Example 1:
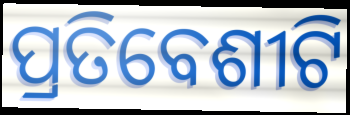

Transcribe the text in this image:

ପ୍ରତିବେଶୀଟି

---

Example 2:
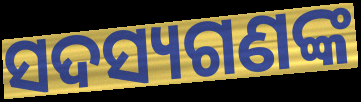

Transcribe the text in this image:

ସଦସ୍ୟଗଣଙ୍କ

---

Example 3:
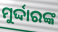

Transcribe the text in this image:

ମୁର୍ଦ୍ଦାରଙ୍କ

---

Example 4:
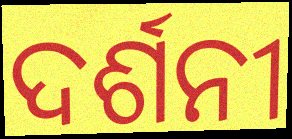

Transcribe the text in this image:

ଦର୍ଶନୀ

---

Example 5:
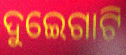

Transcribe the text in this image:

ଦୁଇେଗାଟି